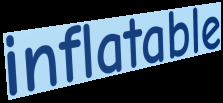
inflatable